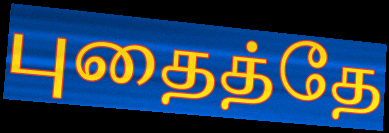
புதைத்தே